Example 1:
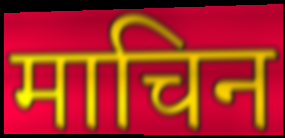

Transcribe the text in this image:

माचिन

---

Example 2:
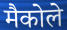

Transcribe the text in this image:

मैकोले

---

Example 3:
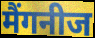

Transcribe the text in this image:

मैंगनीज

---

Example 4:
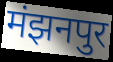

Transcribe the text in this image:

मंझनपुर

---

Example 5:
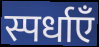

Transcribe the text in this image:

स्पर्धाएँ